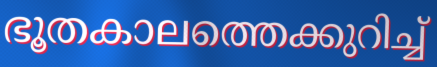
ഭൂതകാലത്തെക്കുറിച്ച്